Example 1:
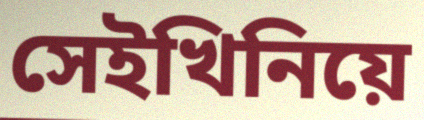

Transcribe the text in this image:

সেইখিনিয়ে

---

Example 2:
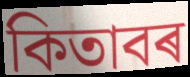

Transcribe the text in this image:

কিতাবৰ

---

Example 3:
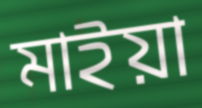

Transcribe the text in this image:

মাইয়া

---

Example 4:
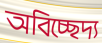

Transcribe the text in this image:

অবিচ্ছেদ্য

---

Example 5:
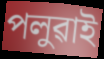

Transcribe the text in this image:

পলুৱাই